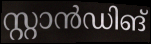
സ്റ്റാൻഡിങ്